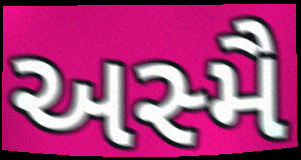
અસ્મૈ